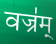
वज्र॑म्